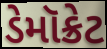
ડેમૉક્રેટ